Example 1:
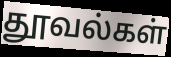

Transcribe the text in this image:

தூவல்கள்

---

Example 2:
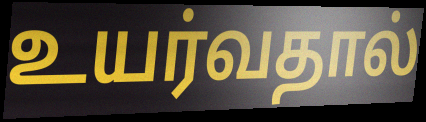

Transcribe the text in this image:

உயர்வதால்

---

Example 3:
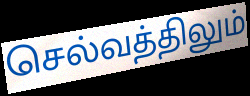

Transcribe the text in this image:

செல்வத்திலும்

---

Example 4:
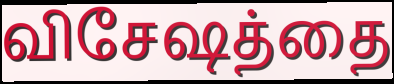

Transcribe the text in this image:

விசேஷத்தை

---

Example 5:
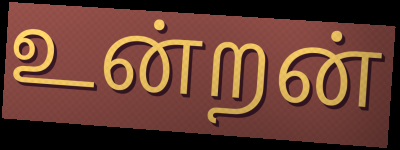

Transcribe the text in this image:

உன்றன்